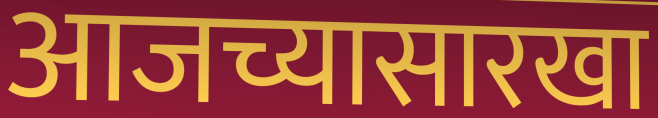
आजच्यासारखा